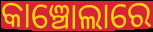
କାଞ୍ଚୋଲାରେ